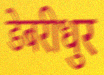
डेबरीधुर